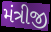
મંત્રીજી